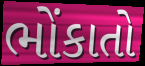
ભોંકાતો